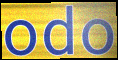
odo